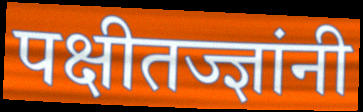
पक्षीतज्ज्ञांनी